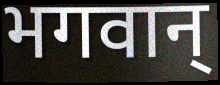
भगवान्